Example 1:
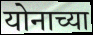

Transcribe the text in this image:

योनाच्या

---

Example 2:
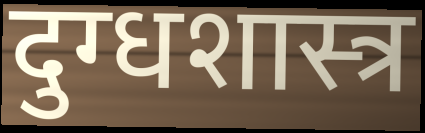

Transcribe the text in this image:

दुग्धशास्त्र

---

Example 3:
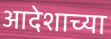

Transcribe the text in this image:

आदेशाच्या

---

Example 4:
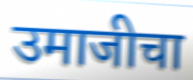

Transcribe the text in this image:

उमाजीचा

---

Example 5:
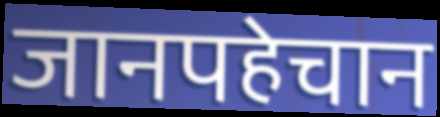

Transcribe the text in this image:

जानपहेचान